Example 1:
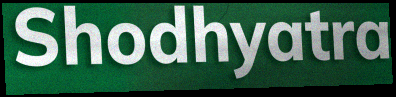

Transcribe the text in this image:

Shodhyatra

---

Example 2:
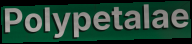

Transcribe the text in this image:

Polypetalae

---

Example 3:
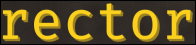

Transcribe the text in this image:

rector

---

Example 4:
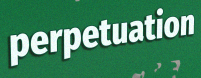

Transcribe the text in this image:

perpetuation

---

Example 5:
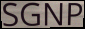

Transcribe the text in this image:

SGNP